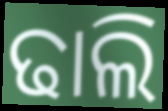
ଢାଲି